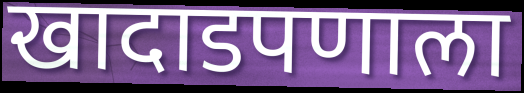
खादाडपणाला